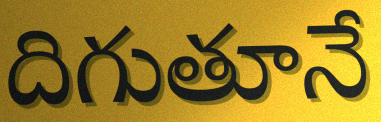
దిగుతూనే